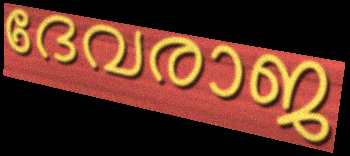
ദേവരാജ